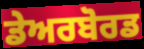
ਡੇਅਰਬੋਰਡ